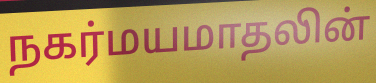
நகர்மயமாதலின்